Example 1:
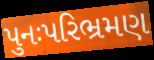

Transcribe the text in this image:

પુનઃપરિભ્રમણ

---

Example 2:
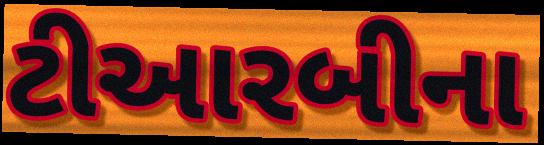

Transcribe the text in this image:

ટીઆરબીના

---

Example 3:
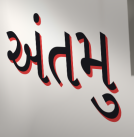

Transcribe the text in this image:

અંતમુ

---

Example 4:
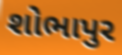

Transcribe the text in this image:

શોભાપુર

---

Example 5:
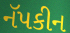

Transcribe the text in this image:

નૅપકીન